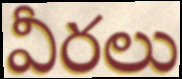
వీరలు